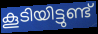
കൂടിയിട്ടുണ്ട്